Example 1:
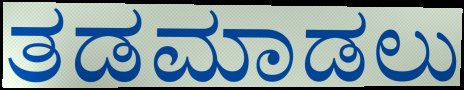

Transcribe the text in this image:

ತಡಮಾಡಲು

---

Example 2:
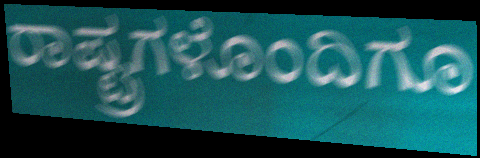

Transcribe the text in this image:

ರಾಷ್ಟ್ರಗಳೊಂದಿಗೂ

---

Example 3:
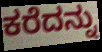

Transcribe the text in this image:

ಕರೆದನ್ನು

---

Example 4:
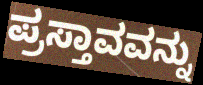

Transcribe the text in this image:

ಪ್ರಸ್ತಾವವನ್ನು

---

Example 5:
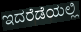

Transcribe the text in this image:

ಇದರೆಡೆಯಲ್ಲಿ